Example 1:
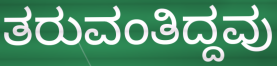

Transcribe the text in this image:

ತರುವಂತಿದ್ದವು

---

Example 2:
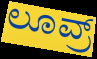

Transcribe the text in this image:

ಲೂವ್ರ್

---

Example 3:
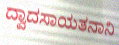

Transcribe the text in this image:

ದ್ವಾದಸಾಯತನಾನಿ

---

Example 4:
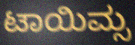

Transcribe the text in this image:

ಟಾಯಿಮ್ಸ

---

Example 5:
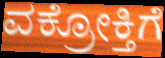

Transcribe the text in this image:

ವಕ್ರೋಕ್ತಿಗೆ